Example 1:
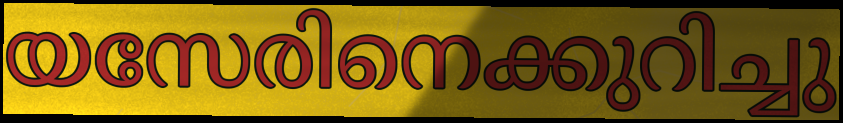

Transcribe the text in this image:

യസേരിനെക്കുറിച്ചു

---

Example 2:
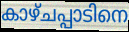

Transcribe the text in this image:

കാഴ്ചപ്പാടിനെ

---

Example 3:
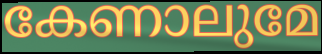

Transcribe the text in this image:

കേണാലുമേ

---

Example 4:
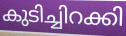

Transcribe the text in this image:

കുടിച്ചിറക്കി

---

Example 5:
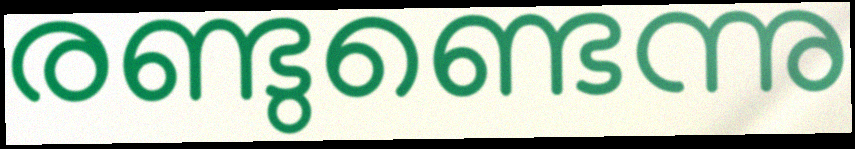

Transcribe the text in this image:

രണ്ടുണ്ടെന്നു